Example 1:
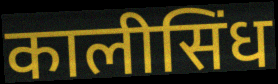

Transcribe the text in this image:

कालीसिंध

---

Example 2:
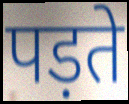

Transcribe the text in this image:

पड़ते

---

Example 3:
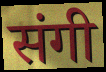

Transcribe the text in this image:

संगी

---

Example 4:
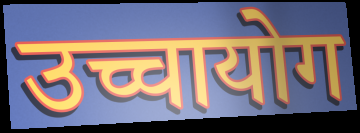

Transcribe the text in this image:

उच्चायोग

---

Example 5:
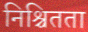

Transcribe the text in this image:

निश्चितता